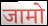
जामो